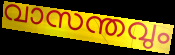
വാസന്തവും